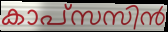
കാപ്സസിൻ